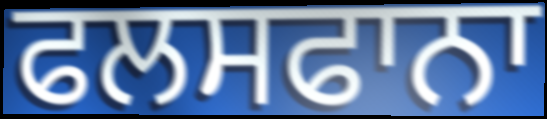
ਫਲਸਫਾਨਾ